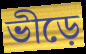
ভীড়ে